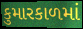
કુમારકાળમાં